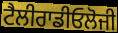
ਟੈਲੀਰਾਡੀਓਲੋਜੀ